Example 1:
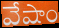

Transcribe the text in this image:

వేషాం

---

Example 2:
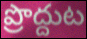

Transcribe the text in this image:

ప్రొద్దుట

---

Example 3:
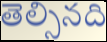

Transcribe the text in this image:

తెల్సినది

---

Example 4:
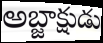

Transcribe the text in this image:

అబ్జాక్షుడు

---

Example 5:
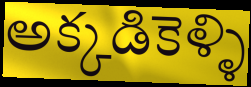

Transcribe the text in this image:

అక్కడికెళ్ళి